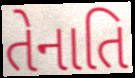
તેનાતિ